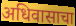
अधिवासाचा